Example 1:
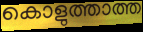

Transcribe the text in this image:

കൊളുത്താത്ത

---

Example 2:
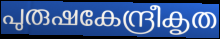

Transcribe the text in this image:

പുരുഷകേന്ദ്രീകൃത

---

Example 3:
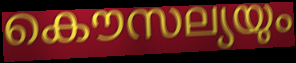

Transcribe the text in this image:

കൌസല്യയും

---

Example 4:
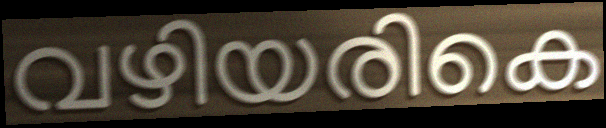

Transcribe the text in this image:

വഴിയരികെ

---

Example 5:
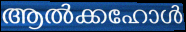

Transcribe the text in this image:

ആൽക്കഹോൾ